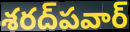
శరద్‌పవార్